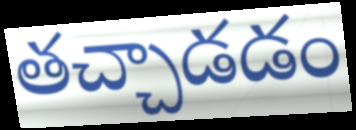
తచ్చాడడం